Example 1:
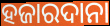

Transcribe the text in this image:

ହଜାରଦାନା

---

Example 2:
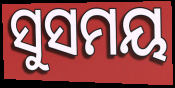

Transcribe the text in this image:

ସୁସମୟ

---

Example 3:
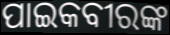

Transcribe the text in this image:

ପାଇକବୀରଙ୍କ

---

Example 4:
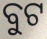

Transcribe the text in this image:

ବୁଟ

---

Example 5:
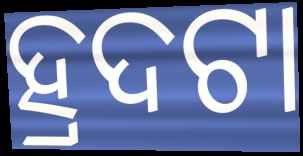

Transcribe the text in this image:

ହ୍ରଦଟା